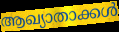
ആഖ്യാതാക്കൾ